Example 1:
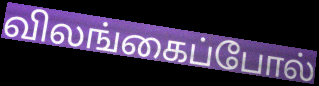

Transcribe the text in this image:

விலங்கைப்போல்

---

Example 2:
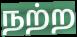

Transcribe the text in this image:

நற்ற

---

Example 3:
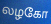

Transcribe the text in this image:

லழகோ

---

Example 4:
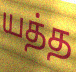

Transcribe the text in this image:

யத்த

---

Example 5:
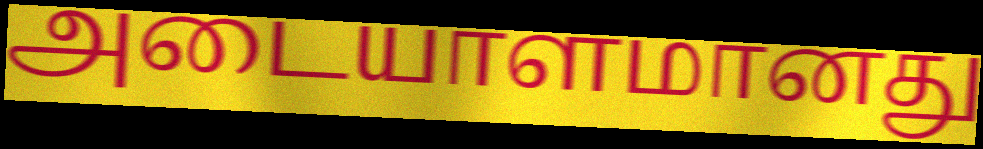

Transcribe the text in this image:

அடையாளமானது